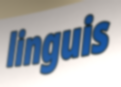
linguis